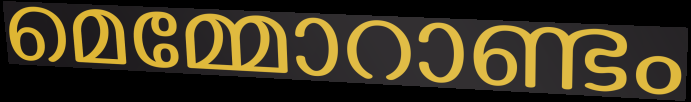
മെമ്മോറാണ്ടം